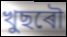
খুছৰৌ